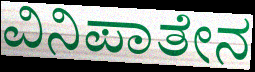
ವಿನಿಪಾತೇನ